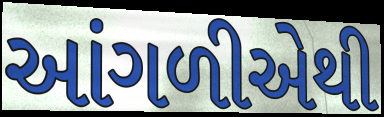
આંગળીએથી